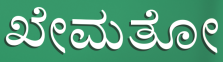
ಖೇಮತೋ